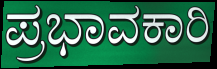
ಪ್ರಭಾವಕಾರಿ